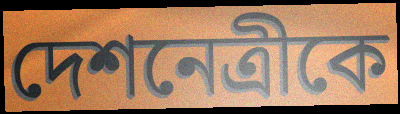
দেশনেত্রীকে